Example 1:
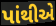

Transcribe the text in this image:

પાંથીએ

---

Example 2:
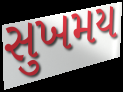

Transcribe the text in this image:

સુખમય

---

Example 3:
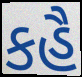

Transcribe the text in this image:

કહૈ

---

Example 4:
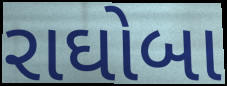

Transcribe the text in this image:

રાઘોબા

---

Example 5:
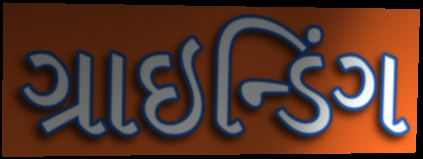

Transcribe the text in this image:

ગ્રાઇન્ડિંગ